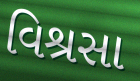
વિશ્રસા